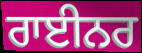
ਰਾਈਨਰ